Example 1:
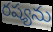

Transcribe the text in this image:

రష్యను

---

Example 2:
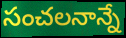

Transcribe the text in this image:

సంచలనాన్నే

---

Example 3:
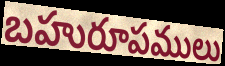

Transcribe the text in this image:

బహురూపములు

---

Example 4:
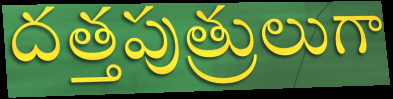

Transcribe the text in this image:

దత్తపుత్రులుగా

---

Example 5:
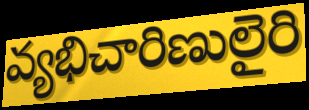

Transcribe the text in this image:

వ్యభిచారిణులైరి